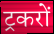
ट्रकरों